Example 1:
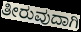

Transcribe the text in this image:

ತೀರುವುದಾಗಿ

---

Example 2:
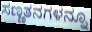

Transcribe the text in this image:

ಸಣ್ಣತನಗಳನ್ನೂ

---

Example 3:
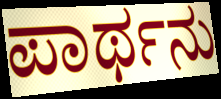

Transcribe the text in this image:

ಪಾರ್ಥನು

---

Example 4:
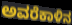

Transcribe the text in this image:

ಅವರೆಕಾಳಿನ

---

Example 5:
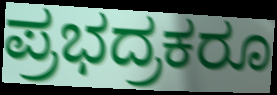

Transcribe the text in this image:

ಪ್ರಭದ್ರಕರೂ